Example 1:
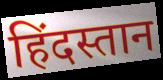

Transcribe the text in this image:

हिंदस्तान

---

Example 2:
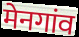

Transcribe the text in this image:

मेनगांव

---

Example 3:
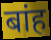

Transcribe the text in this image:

बांह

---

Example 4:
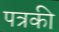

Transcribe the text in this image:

पत्रकी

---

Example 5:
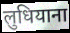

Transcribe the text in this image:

लुधियाना